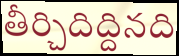
తీర్చిదిద్దినది